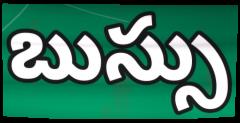
బుస్సు